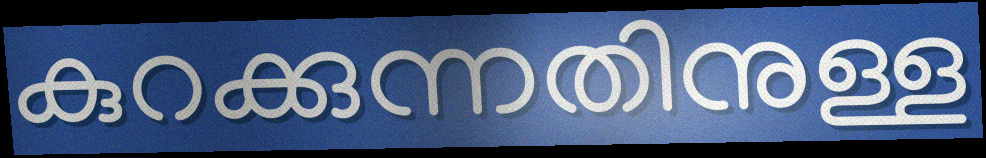
കുറക്കുന്നതിനുള്ള